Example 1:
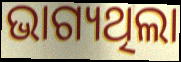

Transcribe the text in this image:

ଭାଗ୍ୟଥିଲା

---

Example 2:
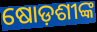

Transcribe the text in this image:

ଷୋଡ଼ଶୀଙ୍କ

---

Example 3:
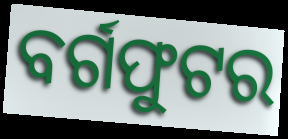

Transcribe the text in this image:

ବର୍ଗଫୁଟର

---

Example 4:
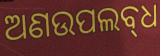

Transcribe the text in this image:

ଅଣଉପଲବ୍‌ଧ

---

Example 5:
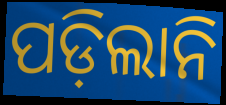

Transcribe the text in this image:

ପଡ଼ିଲାନି